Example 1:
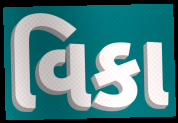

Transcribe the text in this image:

વિકા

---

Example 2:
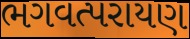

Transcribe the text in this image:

ભગવત્પરાયણ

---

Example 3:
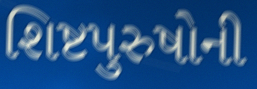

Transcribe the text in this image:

શિષ્ટપુરુષોની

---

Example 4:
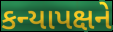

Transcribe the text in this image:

કન્યાપક્ષને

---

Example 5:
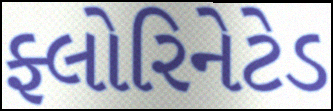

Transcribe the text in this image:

ફ્લોરિનેટેડ